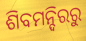
ଶିବମନ୍ଦିରରୁ